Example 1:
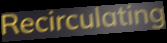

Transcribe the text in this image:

Recirculating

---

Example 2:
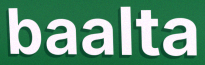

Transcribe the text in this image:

baalta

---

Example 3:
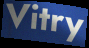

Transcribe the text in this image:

Vitry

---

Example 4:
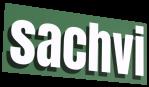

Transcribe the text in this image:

sachvi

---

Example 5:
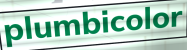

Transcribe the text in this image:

plumbicolor